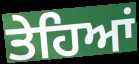
ਤੇਹਿਆਂ